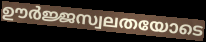
ഊർജ്ജസ്വലതയോടെ